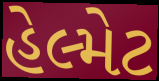
હેલ્મેટ